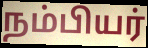
நம்பியர்